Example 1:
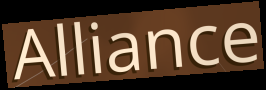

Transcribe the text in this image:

Alliance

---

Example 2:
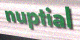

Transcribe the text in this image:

nuptial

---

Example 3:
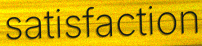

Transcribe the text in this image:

satisfaction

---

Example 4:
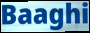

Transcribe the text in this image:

Baaghi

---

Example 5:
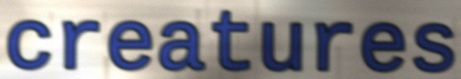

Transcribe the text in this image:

creatures